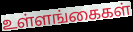
உள்ளங்கைகள்